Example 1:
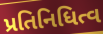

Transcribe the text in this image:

પ્રતિનિધિત્વ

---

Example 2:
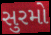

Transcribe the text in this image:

સુરમો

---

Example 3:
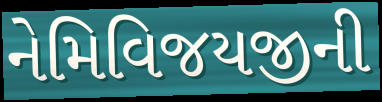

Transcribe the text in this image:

નેમિવિજયજીની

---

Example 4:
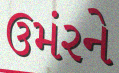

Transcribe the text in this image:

ઉમંરને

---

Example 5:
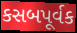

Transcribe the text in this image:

કસબપૂર્વક